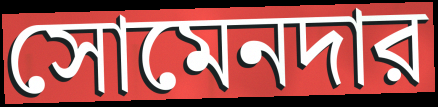
সোমেনদার